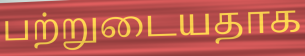
பற்றுடையதாக